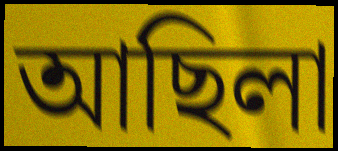
আছিলা